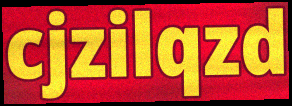
cjzilqzd